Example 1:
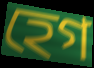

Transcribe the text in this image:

হেগ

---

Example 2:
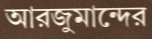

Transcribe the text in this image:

আরজুমান্দের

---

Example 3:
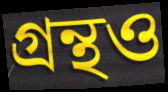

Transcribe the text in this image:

গ্রন্থও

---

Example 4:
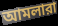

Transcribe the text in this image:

আমলারা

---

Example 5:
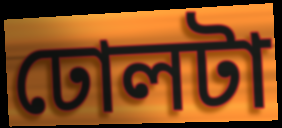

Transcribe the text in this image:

ঢোলটা